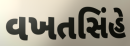
વખતસિંહે